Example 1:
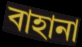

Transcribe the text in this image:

বাহানা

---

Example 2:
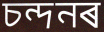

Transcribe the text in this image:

চন্দনৰ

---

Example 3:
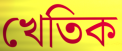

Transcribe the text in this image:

খেতিক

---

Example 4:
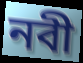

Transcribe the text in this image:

নবী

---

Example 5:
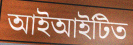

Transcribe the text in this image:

আইআইটিত